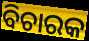
ବିଚାରକ